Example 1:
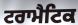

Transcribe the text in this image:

ਟਰਾਮੈਟਿਕ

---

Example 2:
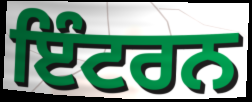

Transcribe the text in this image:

ਇੰਟਰਨ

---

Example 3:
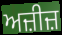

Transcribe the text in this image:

ਅਜ਼ੀਜ਼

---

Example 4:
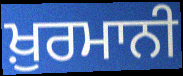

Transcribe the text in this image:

ਖ਼ੁਰਮਾਨੀ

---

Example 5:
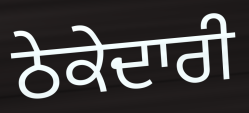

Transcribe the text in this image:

ਠੇਕੇਦਾਰੀ